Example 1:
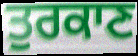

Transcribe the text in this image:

ਤੁਰਕਾਣ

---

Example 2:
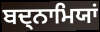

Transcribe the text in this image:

ਬਦ੍ਨਾਮਿਯਾਂ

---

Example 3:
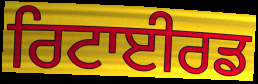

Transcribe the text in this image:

ਰਿਟਾਈਰਡ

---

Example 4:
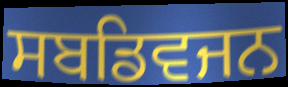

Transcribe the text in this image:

ਸਬਡਿਵਜਨ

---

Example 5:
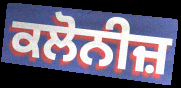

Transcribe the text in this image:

ਕਲੋਨੀਜ਼